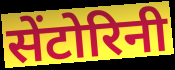
सेंटोरिनी